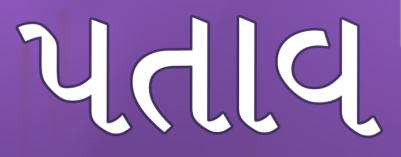
પતાવ